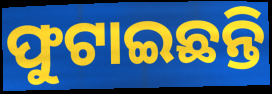
ଫୁଟାଇଛନ୍ତି